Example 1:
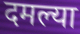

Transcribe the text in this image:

दमल्या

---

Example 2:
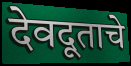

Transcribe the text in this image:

देवदूताचे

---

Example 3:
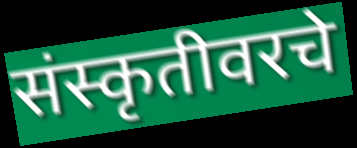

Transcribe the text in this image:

संस्कृतीवरचे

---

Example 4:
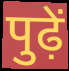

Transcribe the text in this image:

पुढ़ें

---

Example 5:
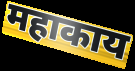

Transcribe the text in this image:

महाकाय